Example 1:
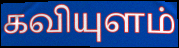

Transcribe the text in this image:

கவியுளம்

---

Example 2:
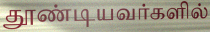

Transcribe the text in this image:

தூண்டியவர்களில்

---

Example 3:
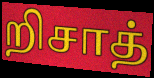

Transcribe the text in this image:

றிசாத்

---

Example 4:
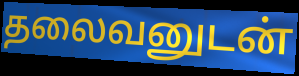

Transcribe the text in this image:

தலைவனுடன்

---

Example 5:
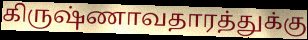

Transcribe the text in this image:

கிருஷ்ணாவதாரத்துக்கு